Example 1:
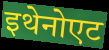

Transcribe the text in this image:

इथेनोएट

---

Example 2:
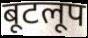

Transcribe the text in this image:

बूटलूप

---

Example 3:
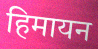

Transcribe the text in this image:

हिमायन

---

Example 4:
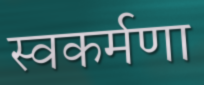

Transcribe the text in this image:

स्वकर्मणा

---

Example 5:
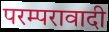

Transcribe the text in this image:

परम्परावादी